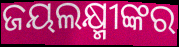
ଜୟଲକ୍ଷ୍ମୀଙ୍କର